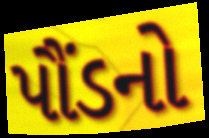
પૌંડનો